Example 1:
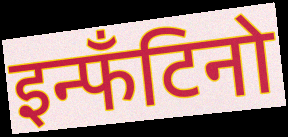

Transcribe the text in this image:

इन्फँटिनो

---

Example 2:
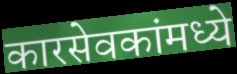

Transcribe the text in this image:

कारसेवकांमध्ये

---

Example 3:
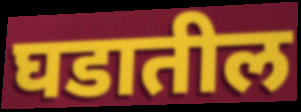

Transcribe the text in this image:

घडातील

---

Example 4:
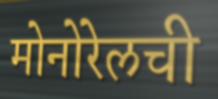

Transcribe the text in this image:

मोनोरेलची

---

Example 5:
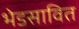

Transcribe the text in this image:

भेडसावित